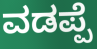
ವಡಪ್ಪೆ